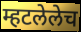
म्हटलेलेच